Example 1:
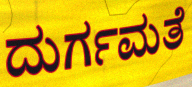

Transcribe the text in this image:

ದುರ್ಗಮತೆ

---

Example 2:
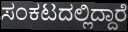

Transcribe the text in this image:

ಸಂಕಟದಲ್ಲಿದ್ದಾರೆ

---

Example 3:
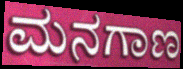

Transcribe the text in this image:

ಮನಗಾಣ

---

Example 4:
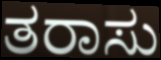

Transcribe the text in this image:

ತರಾಸು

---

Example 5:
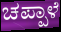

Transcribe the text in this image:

ಚಪ್ಪಾಳೆ